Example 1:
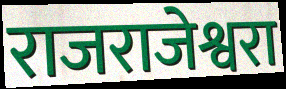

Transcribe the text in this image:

राजराजेश्वरा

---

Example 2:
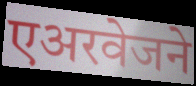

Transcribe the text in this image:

एअरवेजने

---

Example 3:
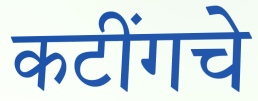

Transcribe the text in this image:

कटींगचे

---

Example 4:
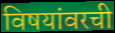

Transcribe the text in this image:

विषयांवरची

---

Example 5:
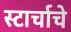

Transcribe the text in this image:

स्टार्चाचे